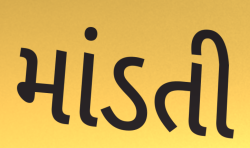
માંડતી